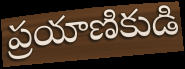
ప్రయాణికుడి